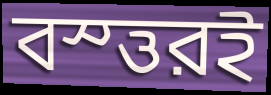
বস্ত্তরই